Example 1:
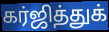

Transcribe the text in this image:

கர்ஜித்துக்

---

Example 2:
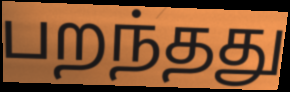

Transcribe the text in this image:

பறந்தது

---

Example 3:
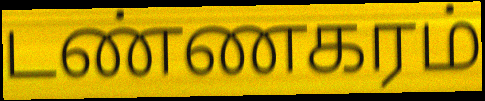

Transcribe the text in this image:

டண்ணகரம்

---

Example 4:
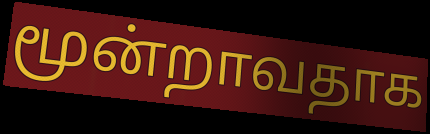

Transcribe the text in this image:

மூன்றாவதாக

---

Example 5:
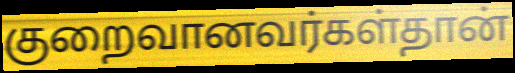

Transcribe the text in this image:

குறைவானவர்கள்தான்